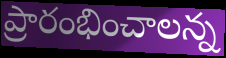
ప్రారంభించాలన్న